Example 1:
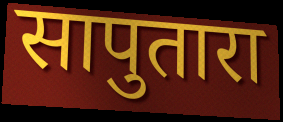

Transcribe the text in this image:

सापुतारा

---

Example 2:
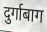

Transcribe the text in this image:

दुर्गाबाग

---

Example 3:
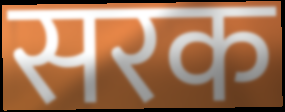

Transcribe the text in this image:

सरक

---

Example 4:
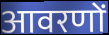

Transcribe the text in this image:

आवरणों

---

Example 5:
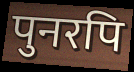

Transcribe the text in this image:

पुनरपि